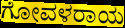
ಗೋವಳರಾಯ